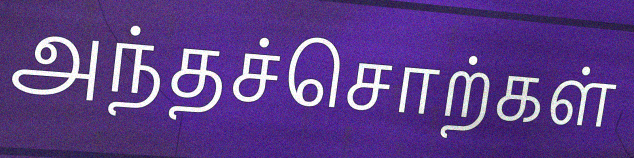
அந்தச்சொற்கள்